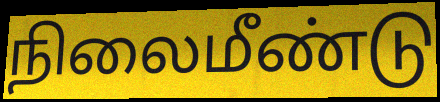
நிலைமீண்டு